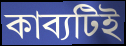
কাব্যটিই